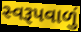
સ્વરૂપવાળું